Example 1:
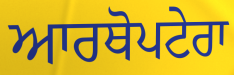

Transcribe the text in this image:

ਆਰਥੋਪਟੇਰਾ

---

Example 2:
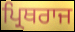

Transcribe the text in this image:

ਪ੍ਰਿਥਰਾਜ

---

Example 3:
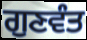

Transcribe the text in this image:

ਗੁਣਵੰਤ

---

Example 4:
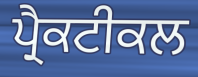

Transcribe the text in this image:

ਪ੍ਰੈਕਟੀਕਲ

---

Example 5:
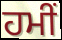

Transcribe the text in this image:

ਹਮੀਂ